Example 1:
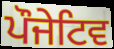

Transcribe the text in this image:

ਪੌਜੇਟਿਵ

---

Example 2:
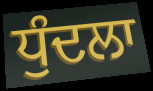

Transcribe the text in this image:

ਧੁੰਦਲਾ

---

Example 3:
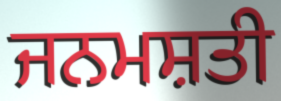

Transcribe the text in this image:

ਜਨਮਸ਼ਤੀ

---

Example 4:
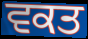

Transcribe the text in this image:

ਵਕਤ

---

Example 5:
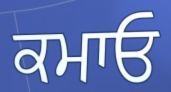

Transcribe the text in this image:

ਕਮਾਓ